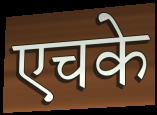
एचके